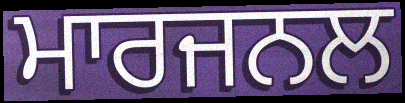
ਮਾਰਜਨਲ